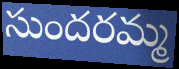
సుందరమ్మ